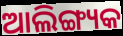
ଆଲିଙ୍ଗ୍ୟକ